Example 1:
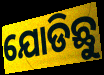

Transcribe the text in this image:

ଯୋଡିଛୁ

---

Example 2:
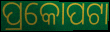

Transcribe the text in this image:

ପ୍ରକୋପଟା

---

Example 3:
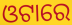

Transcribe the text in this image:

ଓଟାରେ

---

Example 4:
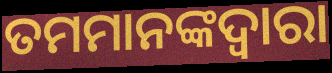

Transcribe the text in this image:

ତମମାନଙ୍କଦ୍ଵାରା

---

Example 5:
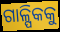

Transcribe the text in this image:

ଗାଳ୍ପିକକୁ